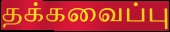
தக்கவைப்பு